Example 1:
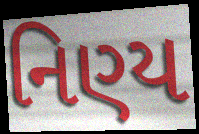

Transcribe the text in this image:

નિણ્ય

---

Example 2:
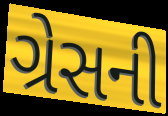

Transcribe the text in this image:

ગ્રેસની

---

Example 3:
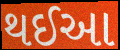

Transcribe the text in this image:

થઈઆ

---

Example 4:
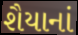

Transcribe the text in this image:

શૈયાનાં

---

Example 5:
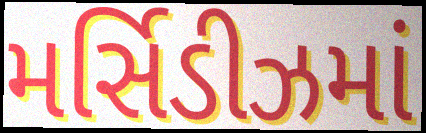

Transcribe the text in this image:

મર્સિડીઝમાં